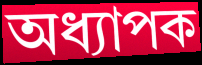
অধ্যাপক